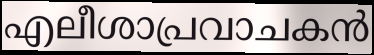
എലീശാപ്രവാചകൻ